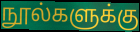
நூல்களுக்கு